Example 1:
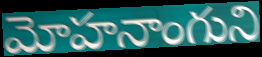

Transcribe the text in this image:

మోహనాంగుని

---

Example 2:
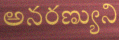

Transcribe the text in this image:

అనరణ్యుని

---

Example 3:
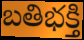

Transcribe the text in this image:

బతిభక్తి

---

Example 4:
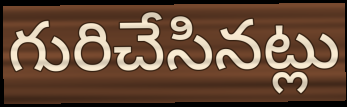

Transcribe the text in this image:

గురిచేసినట్లు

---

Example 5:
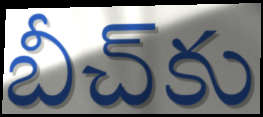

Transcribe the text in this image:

బీచ్‌కు